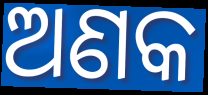
ଅଣକ